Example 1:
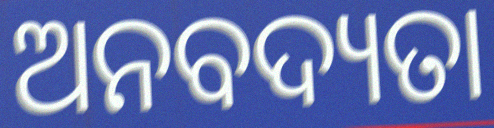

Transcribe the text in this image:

ଅନବଦ୍ୟତା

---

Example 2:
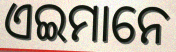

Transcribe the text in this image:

ଏଇମାନେ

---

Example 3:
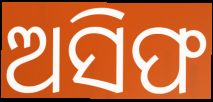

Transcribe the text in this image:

ଅସିଫ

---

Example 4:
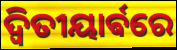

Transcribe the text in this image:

ଦ୍ଵିତୀୟାର୍ଵରେ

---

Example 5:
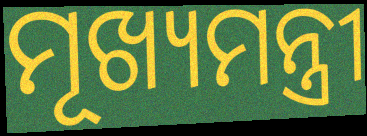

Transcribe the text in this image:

ମୂଖ୍ୟମନ୍ତ୍ରୀ